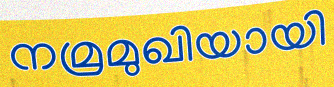
നമ്രമുഖിയായി